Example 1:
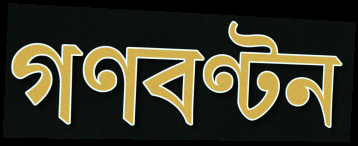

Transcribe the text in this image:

গণবণ্টন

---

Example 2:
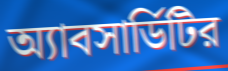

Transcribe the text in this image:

অ্যাবসার্ডিটির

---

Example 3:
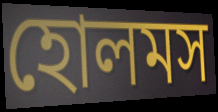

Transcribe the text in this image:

হোলমস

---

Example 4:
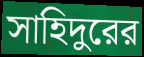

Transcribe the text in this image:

সাহিদুরের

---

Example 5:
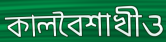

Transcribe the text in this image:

কালবৈশাখীও